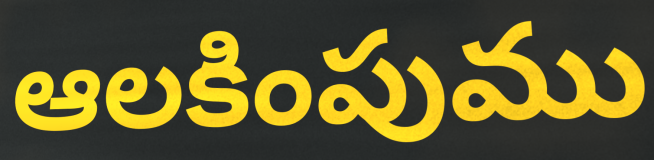
ఆలకింపుము